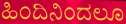
ಹಿಂದಿನಿಂದಲೂ